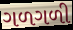
ગળગળી